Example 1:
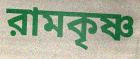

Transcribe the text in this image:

রামকৃষ্ণ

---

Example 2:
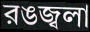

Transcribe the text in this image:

রঙজ্বলা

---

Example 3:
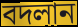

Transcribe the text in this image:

বদলান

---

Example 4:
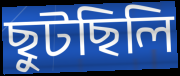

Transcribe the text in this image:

ছুটছিলি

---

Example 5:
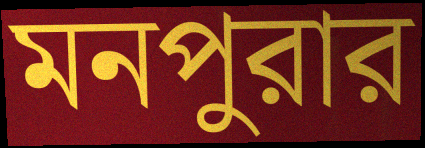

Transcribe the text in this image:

মনপুরার